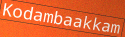
Kodambaakkam